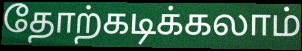
தோற்கடிக்கலாம்